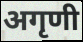
अगृणी